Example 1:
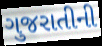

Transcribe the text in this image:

ગુજરાતીની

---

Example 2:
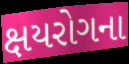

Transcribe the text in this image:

ક્ષયરોગના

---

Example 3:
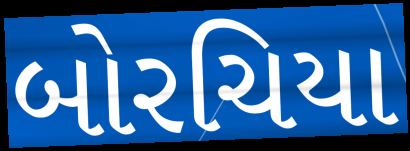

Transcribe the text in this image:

બોરચિયા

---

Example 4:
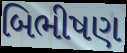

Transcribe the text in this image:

બિભીષણ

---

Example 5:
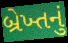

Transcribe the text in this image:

બ્રેખ્તનું